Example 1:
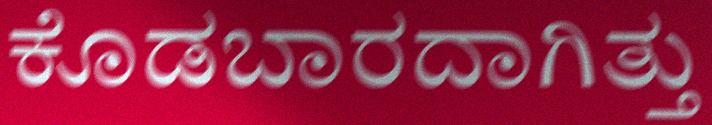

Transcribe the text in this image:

ಕೊಡಬಾರದಾಗಿತ್ತು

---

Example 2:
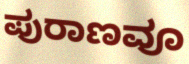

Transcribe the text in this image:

ಪುರಾಣವೂ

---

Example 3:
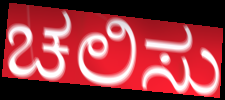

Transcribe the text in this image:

ಚಲಿಸು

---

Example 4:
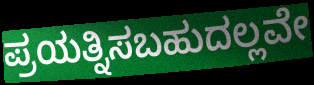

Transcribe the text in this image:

ಪ್ರಯತ್ನಿಸಬಹುದಲ್ಲವೇ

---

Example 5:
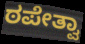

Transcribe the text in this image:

ಠಪೇತ್ವಾ